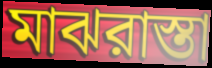
মাঝরাস্তা